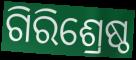
ଗିରିଶ୍ରେଷ୍ଠ